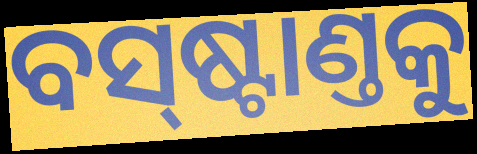
ବସ୍‌ଷ୍ଟାଣ୍ତକୁ